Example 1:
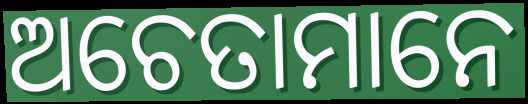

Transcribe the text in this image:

ଅଚେତାମାନେ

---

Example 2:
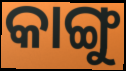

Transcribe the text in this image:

କାଙ୍ଗୁ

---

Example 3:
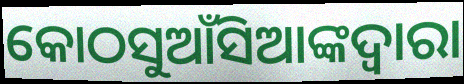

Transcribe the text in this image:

କୋଠସୁଆଁସିଆଙ୍କଦ୍ବାରା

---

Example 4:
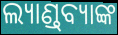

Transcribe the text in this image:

ଲ୍ୟାଣ୍ଡ୍‌ବ୍ୟାଙ୍କ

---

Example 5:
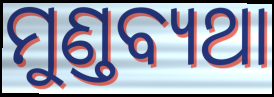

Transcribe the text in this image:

ମୁଣ୍ଡବ୍ୟଥା